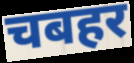
चबहर